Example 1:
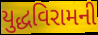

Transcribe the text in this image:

યુદ્ધવિરામની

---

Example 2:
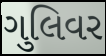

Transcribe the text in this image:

ગુલિવર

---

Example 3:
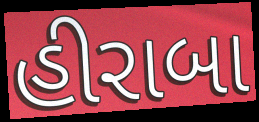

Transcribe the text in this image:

હીરાબા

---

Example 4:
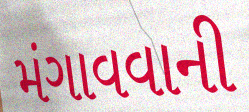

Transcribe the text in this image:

મંગાવવાની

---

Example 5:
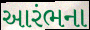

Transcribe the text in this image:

આરંભના